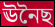
ঊনৈছ